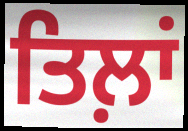
ਤਿਲ਼ਾਂ